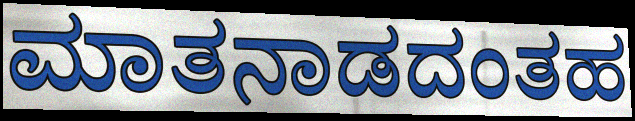
ಮಾತನಾಡದಂತಹ